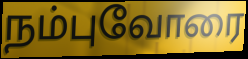
நம்புவோரை